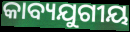
କାବ୍ୟଯୁଗୀୟ